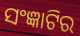
ସଂଜ୍ଞାଟିର